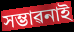
সম্ভাৱনাই